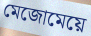
মেজোমেয়ে